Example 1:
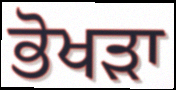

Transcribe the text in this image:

ਭੋਖੜਾ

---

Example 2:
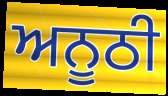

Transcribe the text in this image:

ਅਨੂਠੀ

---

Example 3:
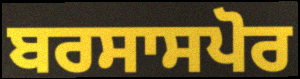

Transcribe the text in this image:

ਬਰਸਾਸਪੋਰ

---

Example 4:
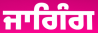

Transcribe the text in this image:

ਜਾਗਿੰਗ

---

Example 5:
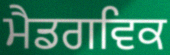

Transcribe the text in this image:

ਮੈਡਗਵਿਕ